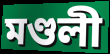
মণ্ডলী